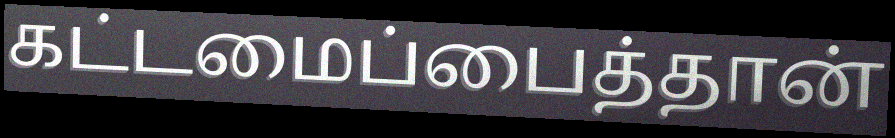
கட்டமைப்பைத்தான்